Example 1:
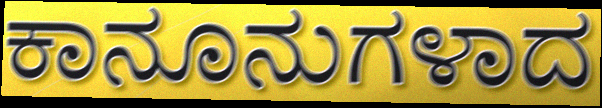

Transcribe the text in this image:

ಕಾನೂನುಗಳಾದ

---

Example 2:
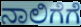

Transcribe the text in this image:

ನಾಲಿಗೆಗೆ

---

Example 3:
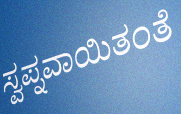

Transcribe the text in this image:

ಸ್ವಪ್ನವಾಯಿತಂತೆ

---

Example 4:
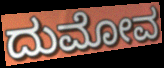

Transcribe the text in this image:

ದುಮೋವ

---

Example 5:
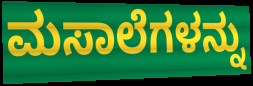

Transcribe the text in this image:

ಮಸಾಲೆಗಳನ್ನು